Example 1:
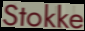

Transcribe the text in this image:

Stokke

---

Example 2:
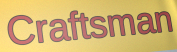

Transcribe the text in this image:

Craftsman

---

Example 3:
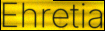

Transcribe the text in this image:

Ehretia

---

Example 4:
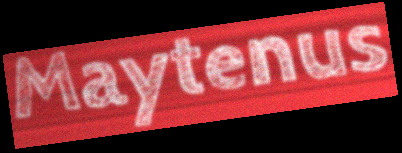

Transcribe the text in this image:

Maytenus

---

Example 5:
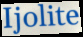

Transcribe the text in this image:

Ijolite